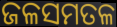
ଜଳସମତଳ